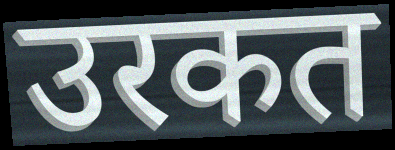
उरकत